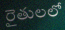
రైతులలో